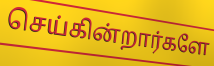
செய்கின்றார்களே